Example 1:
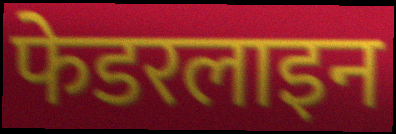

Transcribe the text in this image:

फेडरलाइन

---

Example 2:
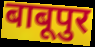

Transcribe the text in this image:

बाबूपुर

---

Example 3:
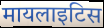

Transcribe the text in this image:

मायलाइटिस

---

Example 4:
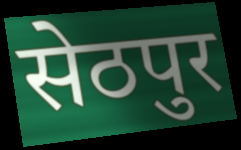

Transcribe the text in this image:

सेठपुर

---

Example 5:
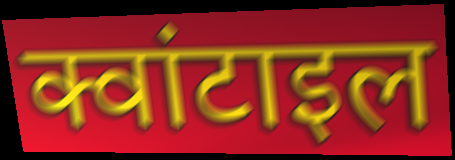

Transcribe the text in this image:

क्वांटाइल